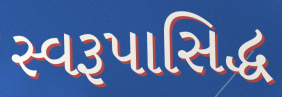
સ્વરૂપાસિદ્ધ